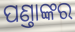
ପଣ୍ତାଙ୍କର